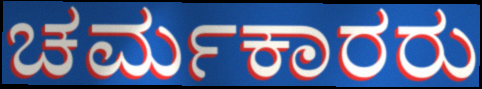
ಚರ್ಮಕಾರರು